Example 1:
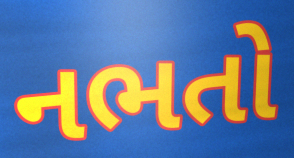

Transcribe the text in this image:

નભતો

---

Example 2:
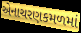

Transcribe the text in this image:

એનાચરણકમળમાં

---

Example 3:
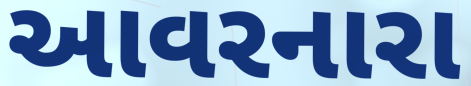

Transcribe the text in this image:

આવરનારા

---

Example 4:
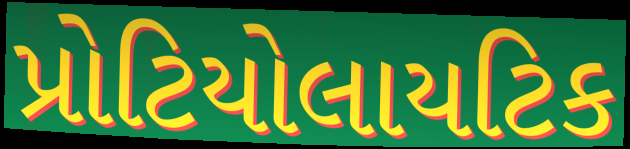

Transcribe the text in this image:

પ્રોટિયોલાયટિક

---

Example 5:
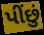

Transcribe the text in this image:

પીંછું